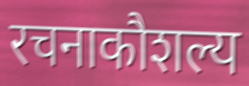
रचनाकौशल्य